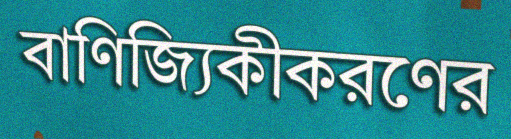
বাণিজ্যিকীকরণের